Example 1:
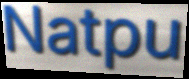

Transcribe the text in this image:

Natpu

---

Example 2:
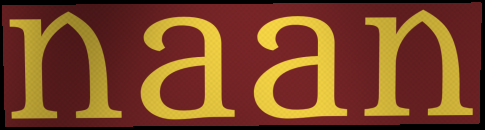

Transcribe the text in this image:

naan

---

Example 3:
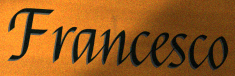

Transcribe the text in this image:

Francesco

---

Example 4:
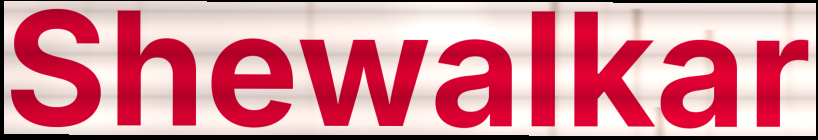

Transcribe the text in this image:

Shewalkar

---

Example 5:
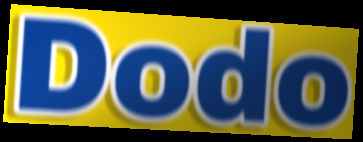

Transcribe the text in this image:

Dodo